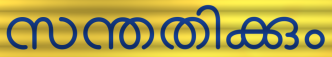
സന്തതിക്കും